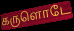
கருளொடே